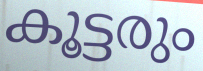
കൂട്ടരും